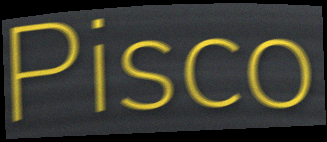
Pisco